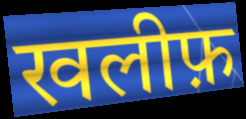
खलीफ़